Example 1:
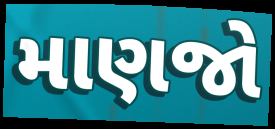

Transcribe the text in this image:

માણજો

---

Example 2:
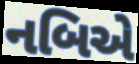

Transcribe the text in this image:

નબિએ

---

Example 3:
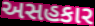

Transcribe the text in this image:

અસહકાર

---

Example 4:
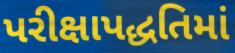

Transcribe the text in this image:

પરીક્ષાપદ્ધતિમાં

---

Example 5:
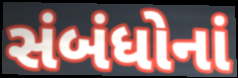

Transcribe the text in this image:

સંબંધોનાં